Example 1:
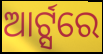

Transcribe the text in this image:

ଆର୍ଟ୍ସରେ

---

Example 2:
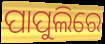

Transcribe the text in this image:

ପାପୁଲିରେ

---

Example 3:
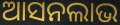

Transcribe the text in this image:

ଆସନଲାଭ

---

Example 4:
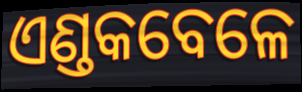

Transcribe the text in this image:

ଏଣ୍ଡକବେଳେ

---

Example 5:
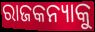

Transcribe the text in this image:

ରାଜକନ୍ୟାକୁ